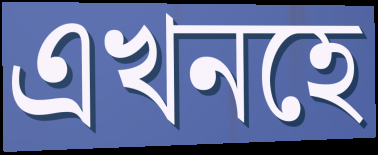
এখনহে